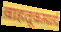
वाहतूकमार्ग